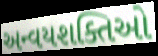
અન્વયશક્તિઓ